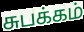
சுபக்கம்